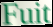
Fuit